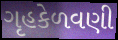
ગૃહકેળવણી